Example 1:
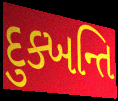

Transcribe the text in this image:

દુક્ખન્તિ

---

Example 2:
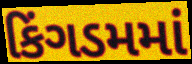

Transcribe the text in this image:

કિંગડમમાં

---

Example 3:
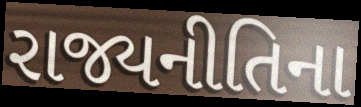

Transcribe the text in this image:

રાજ્યનીતિના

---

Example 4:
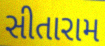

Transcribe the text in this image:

સીતારામ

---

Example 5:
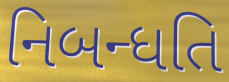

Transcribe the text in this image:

નિબન્ધતિ